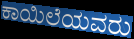
ಕಾಯಿಲೆಯವರು